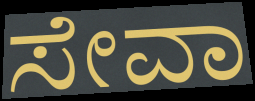
ಸೇವಾ